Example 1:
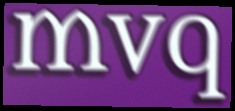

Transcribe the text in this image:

mvq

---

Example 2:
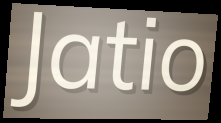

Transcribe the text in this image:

Jatio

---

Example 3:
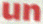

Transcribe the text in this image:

un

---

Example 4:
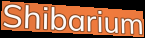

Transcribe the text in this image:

Shibarium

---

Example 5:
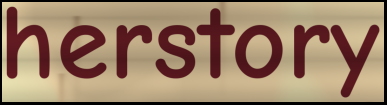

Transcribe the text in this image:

herstory